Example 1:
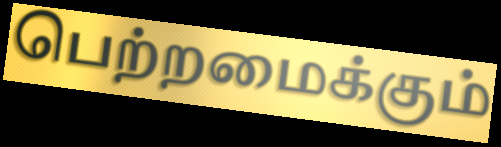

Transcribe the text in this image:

பெற்றமைக்கும்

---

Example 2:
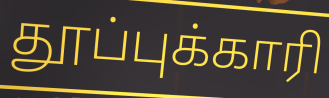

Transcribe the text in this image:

தூப்புக்காரி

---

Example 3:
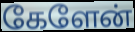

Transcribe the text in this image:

கேளேன்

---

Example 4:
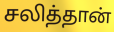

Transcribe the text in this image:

சலித்தான்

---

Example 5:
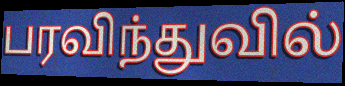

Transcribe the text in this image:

பரவிந்துவில்